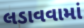
લડાવવામાં